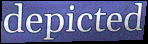
depicted